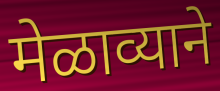
मेळाव्याने